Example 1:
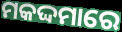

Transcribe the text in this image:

ମକଦ୍ଦମାରେ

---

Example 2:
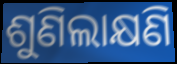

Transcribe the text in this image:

ଶୁଣିଲାକ୍ଷଣି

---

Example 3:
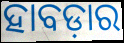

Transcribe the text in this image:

ହାବଡ଼ାର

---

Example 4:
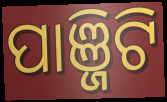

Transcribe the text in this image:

ପାଞ୍ଜିଟି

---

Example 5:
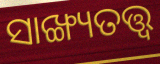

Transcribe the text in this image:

ସାଙ୍ଖ୍ୟତତ୍ତ୍ଵ